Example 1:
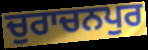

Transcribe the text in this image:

ਚੁਰਾਚਨਪੁਰ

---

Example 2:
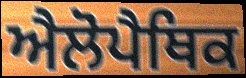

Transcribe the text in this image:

ਐਲੋਪੈਥਿਕ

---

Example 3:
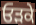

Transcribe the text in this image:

ਓੜਕੇ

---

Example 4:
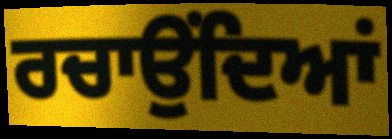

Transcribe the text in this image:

ਰਚਾਉਂਦਿਆਂ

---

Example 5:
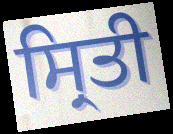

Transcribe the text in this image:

ਸ੍ਰਿਤੀ